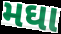
મઘા